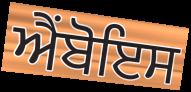
ਐਂਬੋਇਸ